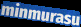
minmurasu